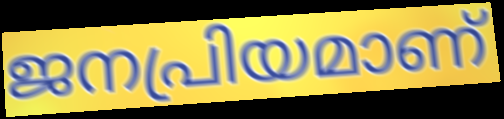
ജനപ്രിയമാണ്